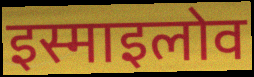
इस्माइलोव